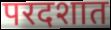
परदशात